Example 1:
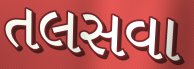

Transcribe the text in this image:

તલસવા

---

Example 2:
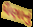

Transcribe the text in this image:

પૈણાનું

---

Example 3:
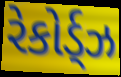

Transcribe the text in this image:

રેકોર્ડ્ઝ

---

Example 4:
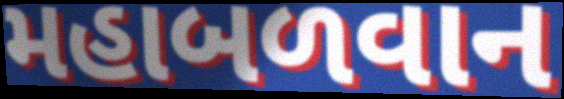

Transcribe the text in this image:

મહાબળવાન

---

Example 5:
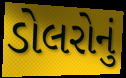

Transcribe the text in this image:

ડોલરોનું